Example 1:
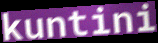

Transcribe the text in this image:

kuntini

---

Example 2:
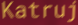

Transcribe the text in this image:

Katruj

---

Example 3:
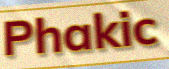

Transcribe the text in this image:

Phakic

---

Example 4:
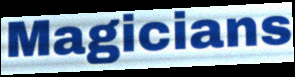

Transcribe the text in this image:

Magicians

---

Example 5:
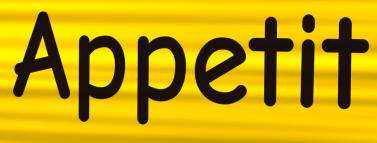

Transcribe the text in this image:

Appetit